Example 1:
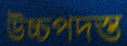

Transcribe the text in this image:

উচ্চপদস্ত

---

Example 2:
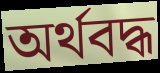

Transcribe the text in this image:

অর্থবদ্ধ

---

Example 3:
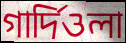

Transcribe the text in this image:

গার্দিওলা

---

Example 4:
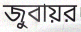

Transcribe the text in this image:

জুবায়র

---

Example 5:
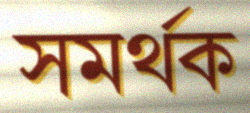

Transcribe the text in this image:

সমর্থক